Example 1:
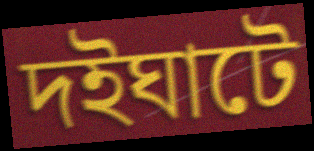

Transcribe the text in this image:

দইঘাটে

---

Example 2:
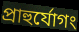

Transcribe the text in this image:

প্রাহুর্যোগং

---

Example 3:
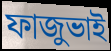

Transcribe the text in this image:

ফাজুভাই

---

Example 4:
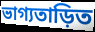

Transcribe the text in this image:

ভাগ্যতাড়িত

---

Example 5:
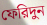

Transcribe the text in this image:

ফেরিদুন